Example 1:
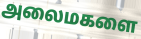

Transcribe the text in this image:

அலைமகளை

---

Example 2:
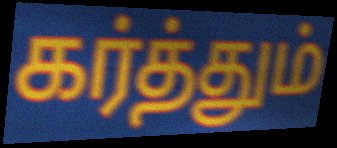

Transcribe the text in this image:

கர்த்தும்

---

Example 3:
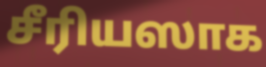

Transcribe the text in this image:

சீரியஸாக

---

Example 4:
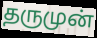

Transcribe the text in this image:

தருமுன்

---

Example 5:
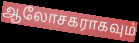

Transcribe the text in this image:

ஆலோசகராகவும்